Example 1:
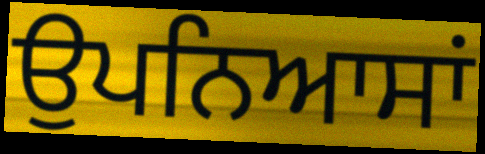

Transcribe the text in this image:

ਉਪਨਿਆਸਾਂ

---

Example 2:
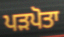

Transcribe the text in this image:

ਪੜਪੋਤਾ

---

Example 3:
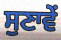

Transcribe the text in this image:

ਸੁਣਾਵੇਂ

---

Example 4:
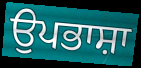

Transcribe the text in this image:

ਉਪਭਾਸ਼ਾ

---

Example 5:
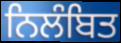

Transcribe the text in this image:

ਨਿਲੰਬਿਤ